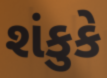
શંકુકે